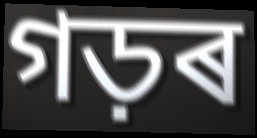
গড়ৰ